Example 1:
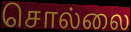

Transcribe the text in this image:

சொல்லை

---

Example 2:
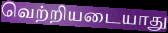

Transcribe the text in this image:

வெற்றியடையாது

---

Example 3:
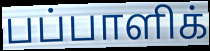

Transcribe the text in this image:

பப்பாளிக்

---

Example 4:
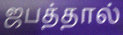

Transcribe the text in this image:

ஜபத்தால்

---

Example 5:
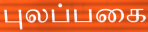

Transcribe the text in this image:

புலப்பகை